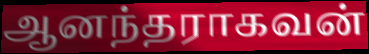
ஆனந்தராகவன்